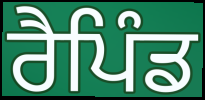
ਰੈਪਿੰਡ